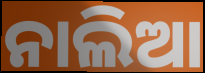
ନାଲିଆ